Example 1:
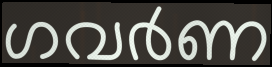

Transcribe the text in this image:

ഗവർണ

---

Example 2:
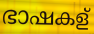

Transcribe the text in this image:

ഭാഷകള്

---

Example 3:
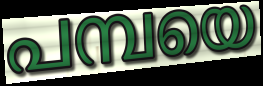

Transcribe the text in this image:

പമ്പയെ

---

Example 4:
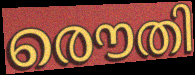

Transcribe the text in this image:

രൌതി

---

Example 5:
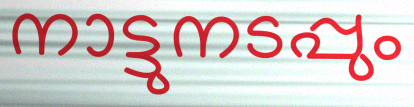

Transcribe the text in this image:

നാട്ടുനടപ്പും